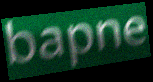
bapne